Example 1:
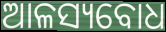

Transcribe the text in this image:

ଆଳସ୍ୟବୋଧ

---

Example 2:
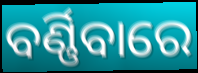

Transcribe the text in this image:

ବର୍ଣ୍ଣିବାରେ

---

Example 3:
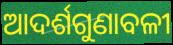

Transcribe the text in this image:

ଆଦର୍ଶଗୁଣାବଳୀ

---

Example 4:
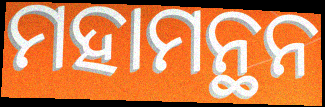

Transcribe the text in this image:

ମହାମନ୍ଥନ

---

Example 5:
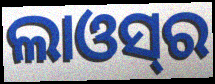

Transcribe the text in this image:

ଲାଓସ୍‌ର